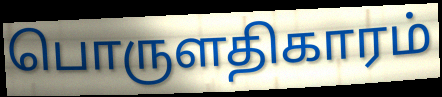
பொருளதிகாரம்